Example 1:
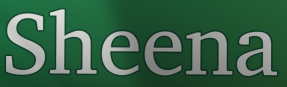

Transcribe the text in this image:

Sheena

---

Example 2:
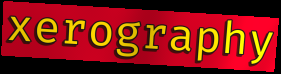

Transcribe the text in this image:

xerography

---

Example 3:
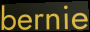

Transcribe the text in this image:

bernie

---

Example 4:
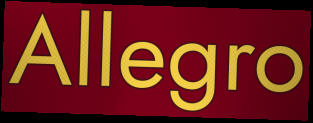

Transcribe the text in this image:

Allegro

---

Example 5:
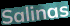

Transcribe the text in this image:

Salinas